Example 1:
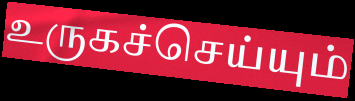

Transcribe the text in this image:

உருகச்செய்யும்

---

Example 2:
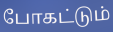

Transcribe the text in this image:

போகட்டும்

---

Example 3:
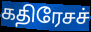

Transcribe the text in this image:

கதிரேசச்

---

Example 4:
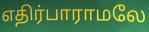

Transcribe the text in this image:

எதிர்பாராமலே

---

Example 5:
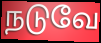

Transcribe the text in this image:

நடுவே